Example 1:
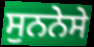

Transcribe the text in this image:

ਸੁਨਨੇਸੇ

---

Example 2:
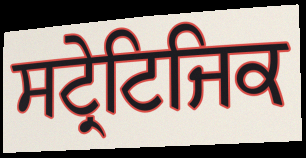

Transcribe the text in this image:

ਸਟ੍ਰੇਟਿਜਿਕ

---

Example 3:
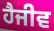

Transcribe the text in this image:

ਹੈਜੀਵ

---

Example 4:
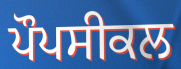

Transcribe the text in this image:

ਪੌਪਸੀਕਲ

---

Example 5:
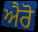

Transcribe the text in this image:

ਐਰੋ